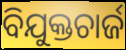
ବିଯୁକ୍ତଚାର୍ଜ